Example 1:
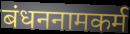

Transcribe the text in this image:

बंधननामकर्म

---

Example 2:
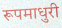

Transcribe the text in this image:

रूपमाधुरी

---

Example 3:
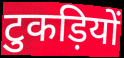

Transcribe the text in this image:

टुकड़ियों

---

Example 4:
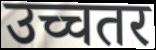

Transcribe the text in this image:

उच्चतर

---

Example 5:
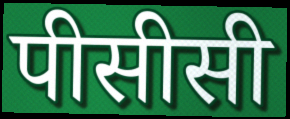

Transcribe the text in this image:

पीसीसी